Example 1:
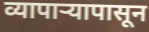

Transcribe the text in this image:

व्यापाऱ्यापासून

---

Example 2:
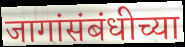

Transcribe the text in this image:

जागांसंबंधीच्या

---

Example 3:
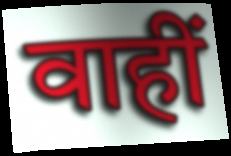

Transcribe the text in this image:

वाहीं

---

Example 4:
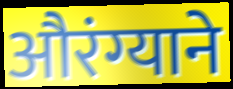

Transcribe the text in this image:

औरंग्याने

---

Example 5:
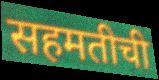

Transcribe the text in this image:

सहमतीची